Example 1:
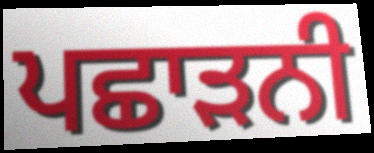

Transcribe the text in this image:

ਪਛਾੜਨੀ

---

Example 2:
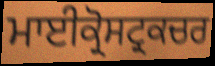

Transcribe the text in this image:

ਮਾਈਕ੍ਰੋਸਟ੍ਰਕਚਰ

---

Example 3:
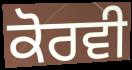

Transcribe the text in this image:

ਕੋਰਵੀ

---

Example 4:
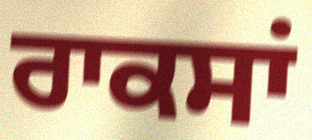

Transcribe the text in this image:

ਰਾਕਸਾਂ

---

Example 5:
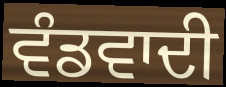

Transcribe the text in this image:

ਵੰਡਵਾਦੀ